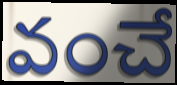
వంచే